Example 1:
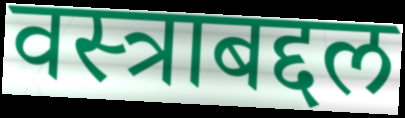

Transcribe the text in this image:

वस्त्राबद्दल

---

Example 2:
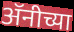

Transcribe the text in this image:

ॲनीच्या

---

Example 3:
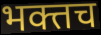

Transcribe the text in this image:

भक्तच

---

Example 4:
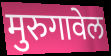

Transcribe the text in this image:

मुरुगावेल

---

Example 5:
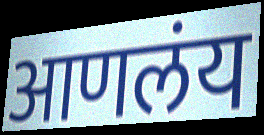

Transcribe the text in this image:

आणलंय